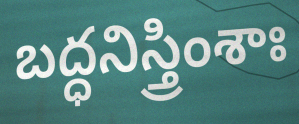
బద్ధనిస్త్రింశాః